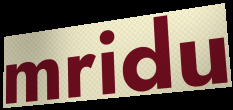
mridu